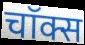
चॉक्स